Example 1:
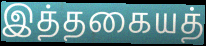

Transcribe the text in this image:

இத்தகையத்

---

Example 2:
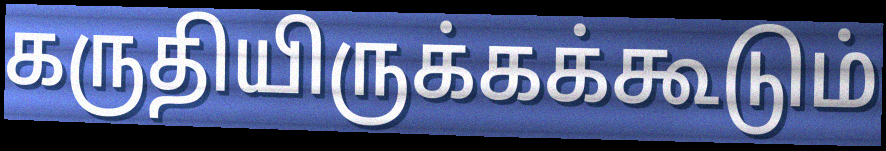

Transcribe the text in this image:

கருதியிருக்கக்கூடும்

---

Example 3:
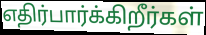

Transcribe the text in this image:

எதிர்பார்க்கிறீர்கள்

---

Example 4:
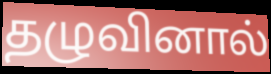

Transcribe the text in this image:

தழுவினால்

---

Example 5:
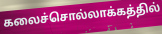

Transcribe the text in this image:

கலைச்சொல்லாக்கத்தில்